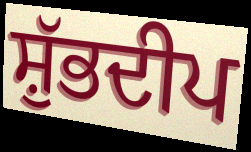
ਸ਼ੁੱਭਦੀਪ